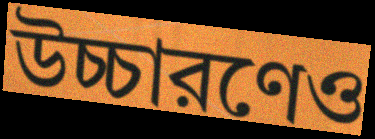
উচ্চারণেও